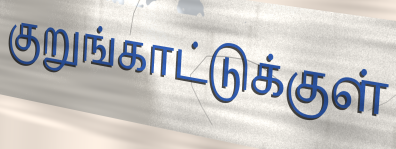
குறுங்காட்டுக்குள்